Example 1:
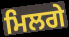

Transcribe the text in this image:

ਮਿਲਗੇ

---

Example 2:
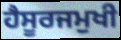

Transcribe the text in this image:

ਹੈਸੂਰਜਮੁਖੀ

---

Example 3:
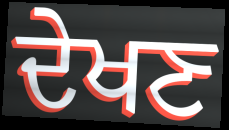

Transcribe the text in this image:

ਦੇਖਣ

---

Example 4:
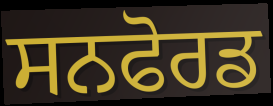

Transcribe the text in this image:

ਸਨਫੋਰਡ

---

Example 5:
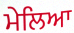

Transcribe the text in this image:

ਮੇਲਿਆ